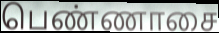
பெண்ணாசை